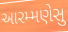
આરમ્મણેસુ